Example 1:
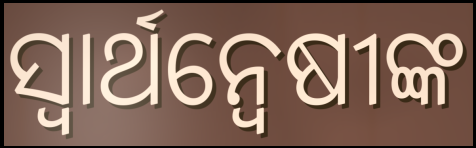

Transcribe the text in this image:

ସ୍ୱାର୍ଥନ୍ୱେଷୀଙ୍କ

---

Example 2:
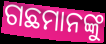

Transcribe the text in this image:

ଗଛମାନଙ୍କୁ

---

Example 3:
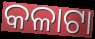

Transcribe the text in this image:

କଳାଟା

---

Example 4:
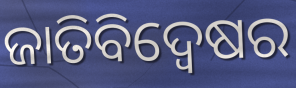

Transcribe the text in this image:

ଜାତିବିଦ୍ୱେଷର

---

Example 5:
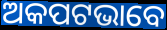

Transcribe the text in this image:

ଅକପଟଭାବେ